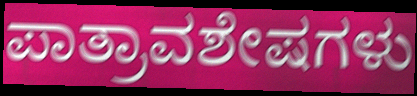
ಪಾತ್ರಾವಶೇಷಗಳು